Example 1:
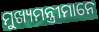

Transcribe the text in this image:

ମୁଖ୍ୟମନ୍ତ୍ରୀମାନେ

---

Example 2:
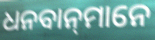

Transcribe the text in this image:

ଧନବାନ୍‍ମାନେ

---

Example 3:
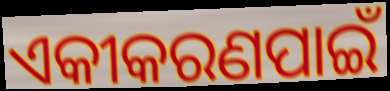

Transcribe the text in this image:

ଏକୀକରଣପାଇଁ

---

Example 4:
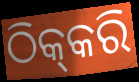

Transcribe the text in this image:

ଠିକ୍‍କରି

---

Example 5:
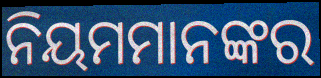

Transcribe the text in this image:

ନିୟମମାନଙ୍କର